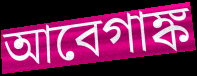
আবেগাঙ্ক